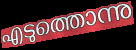
എടുത്തൊന്നു